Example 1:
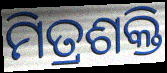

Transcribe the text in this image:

ମିତ୍ରଶକ୍ତି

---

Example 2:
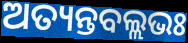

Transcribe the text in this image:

ଅତ୍ୟନ୍ତବଲ୍ଲଭଃ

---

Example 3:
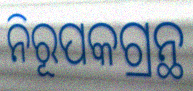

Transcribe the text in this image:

ନିରୂପକଗ୍ରନ୍ଥ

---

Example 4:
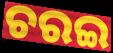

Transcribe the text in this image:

ଚରଇ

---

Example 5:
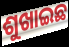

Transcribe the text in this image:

ଶୁଖାଇଛ